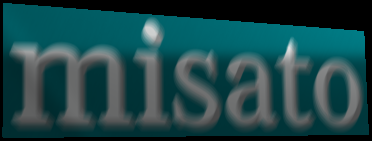
misato